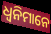
ଧ୍ୱନିମାନେ